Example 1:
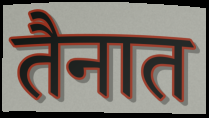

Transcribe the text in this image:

तैनात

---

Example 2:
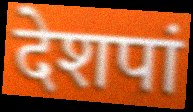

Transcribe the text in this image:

देशपां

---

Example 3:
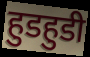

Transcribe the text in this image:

हुडहुडी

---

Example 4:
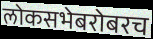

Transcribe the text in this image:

लोकसभेबरोबरच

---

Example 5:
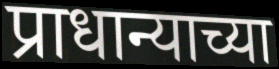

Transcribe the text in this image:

प्राधान्याच्या